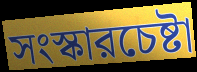
সংস্কারচেষ্টা